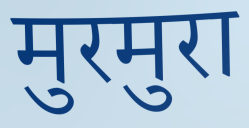
मुरमुरा